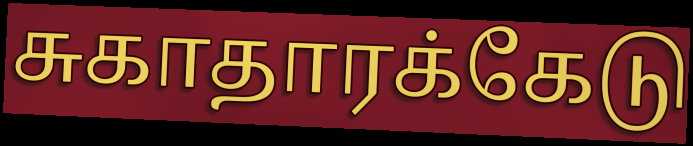
சுகாதாரக்கேடு